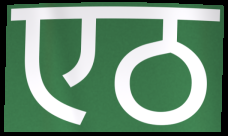
एठ